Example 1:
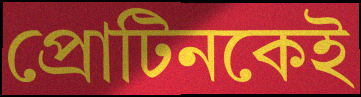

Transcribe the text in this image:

প্রোটিনকেই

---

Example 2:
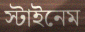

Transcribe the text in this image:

স্টাইনেম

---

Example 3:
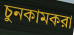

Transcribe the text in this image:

চুনকামকরা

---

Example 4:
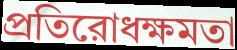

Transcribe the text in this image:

প্রতিরোধক্ষমতা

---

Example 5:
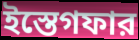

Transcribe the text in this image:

ইস্তেগফার